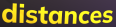
distances